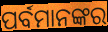
ପର୍ବମାନଙ୍କର